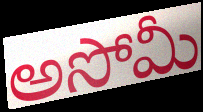
అసోమీ